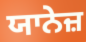
ਯਾਨੇਜ਼